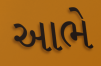
આભે